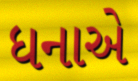
ધનાએ